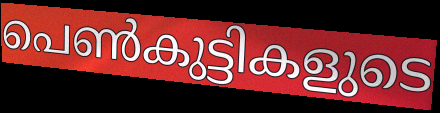
പെൺകുട്ടികളുടെ